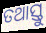
ତଥାସ୍ତୁ